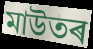
মাউতৰ